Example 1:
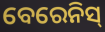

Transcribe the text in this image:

ବେରେନିସ୍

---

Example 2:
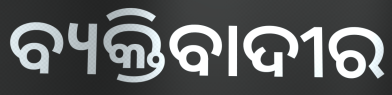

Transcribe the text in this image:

ବ୍ୟକ୍ତିବାଦୀର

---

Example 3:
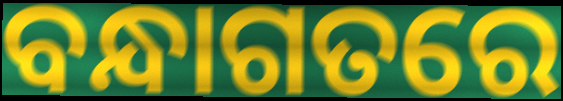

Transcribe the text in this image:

ବନ୍ଧାଗତରେ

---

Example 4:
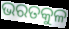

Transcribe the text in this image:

ଭରତକୁଳ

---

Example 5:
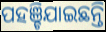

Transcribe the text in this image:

ପହଞ୍ଚିଯାଇଛନ୍ତି